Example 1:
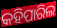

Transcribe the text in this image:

କହିପାରିଲ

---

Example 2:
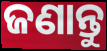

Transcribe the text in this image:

ଜଣାନ୍ତୁ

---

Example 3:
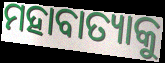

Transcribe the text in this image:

ମହାବାତ୍ୟାକୁ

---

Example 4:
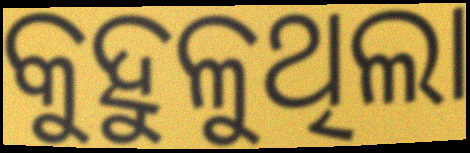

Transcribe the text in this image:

କୁହୁଳୁଥିଲା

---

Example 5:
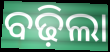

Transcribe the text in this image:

ବଢ଼ିଲା